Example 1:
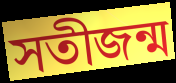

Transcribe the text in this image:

সতীজন্ম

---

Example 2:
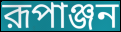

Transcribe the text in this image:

রূপাঞ্জন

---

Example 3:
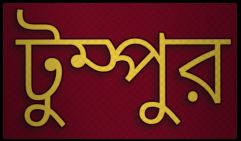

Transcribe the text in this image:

টুম্পুর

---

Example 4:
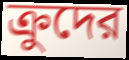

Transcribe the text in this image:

ক্রুদের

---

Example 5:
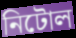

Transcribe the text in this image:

নিটোল